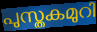
പുസ്തകമുറി